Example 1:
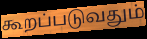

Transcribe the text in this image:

கூறப்படுவதும்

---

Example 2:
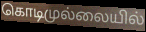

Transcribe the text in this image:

கொடிமுல்லையில்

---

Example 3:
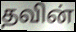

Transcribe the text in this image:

தவின்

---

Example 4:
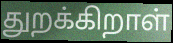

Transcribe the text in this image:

துறக்கிறாள்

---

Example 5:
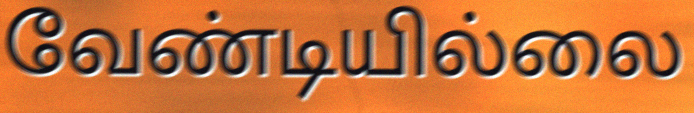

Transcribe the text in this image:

வேண்டியில்லை